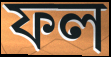
ফল